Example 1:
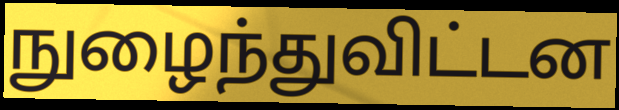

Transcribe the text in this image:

நுழைந்துவிட்டன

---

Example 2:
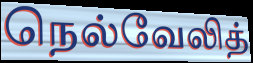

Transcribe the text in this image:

நெல்வேலித்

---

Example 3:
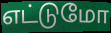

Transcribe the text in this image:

எட்டுமோ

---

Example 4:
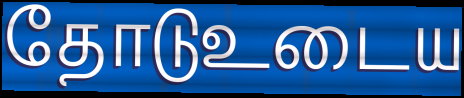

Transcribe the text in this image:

தோடுஉடைய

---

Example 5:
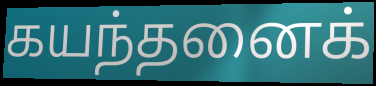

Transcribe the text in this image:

கயந்தனைக்